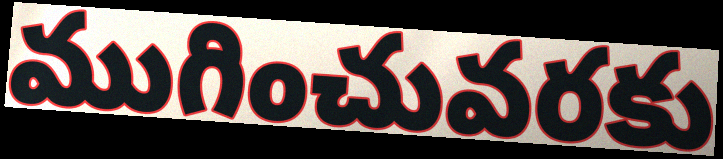
ముగించువరకు